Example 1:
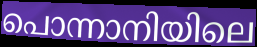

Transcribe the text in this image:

പൊന്നാനിയിലെ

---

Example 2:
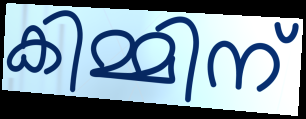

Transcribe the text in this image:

കിമ്മിന്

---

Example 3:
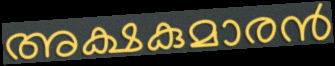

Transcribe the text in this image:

അക്ഷകുമാരൻ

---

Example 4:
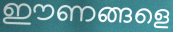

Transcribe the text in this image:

ഈണങ്ങളെ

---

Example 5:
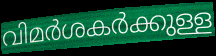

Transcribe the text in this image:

വിമർശകർക്കുള്ള